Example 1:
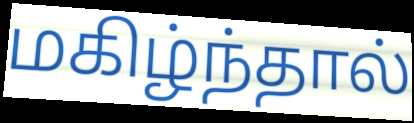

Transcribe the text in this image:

மகிழ்ந்தால்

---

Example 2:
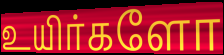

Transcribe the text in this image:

உயிர்களோ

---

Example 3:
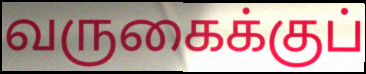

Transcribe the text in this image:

வருகைக்குப்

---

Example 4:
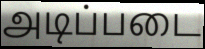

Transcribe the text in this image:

அடிப்படை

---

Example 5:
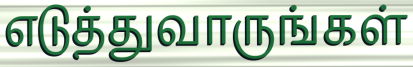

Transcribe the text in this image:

எடுத்துவாருங்கள்